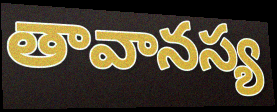
తావానస్య